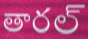
తారల్